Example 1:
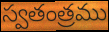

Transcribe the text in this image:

స్వతంత్రము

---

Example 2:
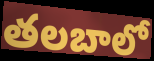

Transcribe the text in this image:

తలబాలో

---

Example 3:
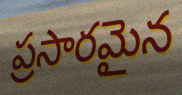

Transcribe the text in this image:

ప్రసారమైన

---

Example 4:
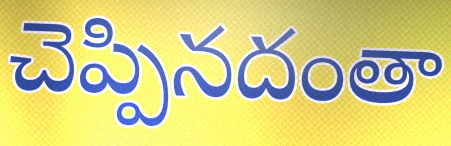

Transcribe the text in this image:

చెప్పినదంతా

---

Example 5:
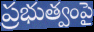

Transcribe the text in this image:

ప్రభుత్వంపై